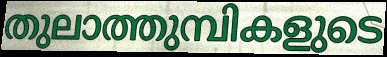
തുലാത്തുമ്പികളുടെ